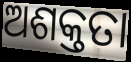
ଅଶକ୍ତତା